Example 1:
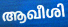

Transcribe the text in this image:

ആഖീശി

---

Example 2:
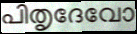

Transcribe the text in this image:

പിതൃദേവോ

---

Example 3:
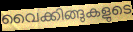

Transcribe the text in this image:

വൈക്കിങ്ങുകളുടെ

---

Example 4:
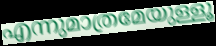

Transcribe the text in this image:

എന്നുമാത്രമേയുള്ളൂ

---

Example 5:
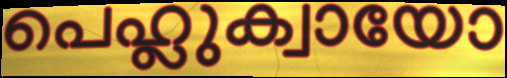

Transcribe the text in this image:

പെഹ്ലുക്വായോ